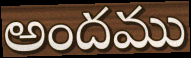
అందము